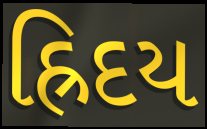
હ્રિદય